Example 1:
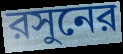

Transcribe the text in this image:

রসুনের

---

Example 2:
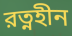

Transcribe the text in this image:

রত্নহীন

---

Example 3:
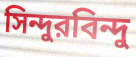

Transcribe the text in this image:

সিন্দুরবিন্দু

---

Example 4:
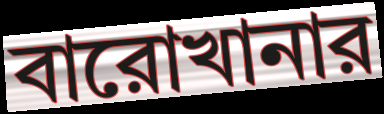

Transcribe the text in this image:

বারোখানার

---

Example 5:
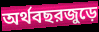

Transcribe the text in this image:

অর্থবছরজুড়ে